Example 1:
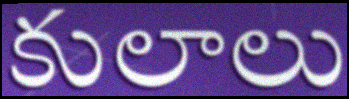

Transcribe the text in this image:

కులాలు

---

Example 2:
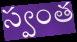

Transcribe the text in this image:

స్వంత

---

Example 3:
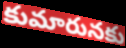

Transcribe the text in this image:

కుమారునకు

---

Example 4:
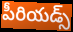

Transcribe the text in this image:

పీరియడ్స్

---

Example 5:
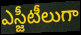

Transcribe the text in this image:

ఎస్జీటీలుగా